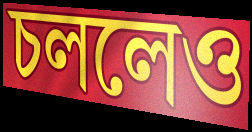
চললেও